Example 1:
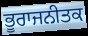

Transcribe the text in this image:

ਭੂਰਾਜਨੀਤਕ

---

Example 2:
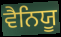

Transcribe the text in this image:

ਵੈਨਿਯੂ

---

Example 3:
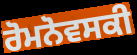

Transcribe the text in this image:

ਰੋਮਨੋਵਸਕੀ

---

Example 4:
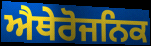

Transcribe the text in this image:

ਐਥੇਰੋਜਨਿਕ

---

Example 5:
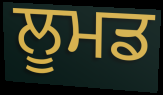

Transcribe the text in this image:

ਲੂਮਡ